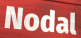
Nodal